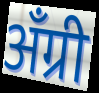
अँग्री